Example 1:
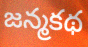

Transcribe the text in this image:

జన్మకథ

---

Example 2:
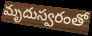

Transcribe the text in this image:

మృదుస్వరంతో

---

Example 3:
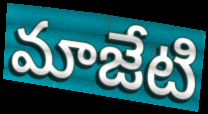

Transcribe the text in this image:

మాజేటి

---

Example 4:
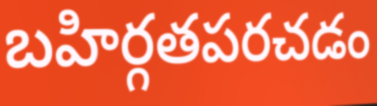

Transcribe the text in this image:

బహిర్గతపరచడం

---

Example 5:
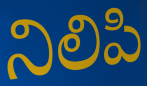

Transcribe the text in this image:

నిలిపి